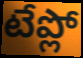
టేప్లో